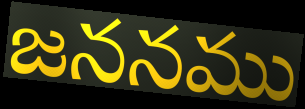
జననము